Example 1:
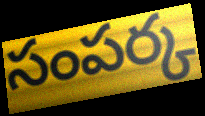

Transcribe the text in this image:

సంపర్క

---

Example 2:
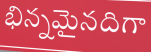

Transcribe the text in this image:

భిన్నమైనదిగా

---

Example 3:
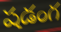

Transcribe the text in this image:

షడంగ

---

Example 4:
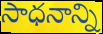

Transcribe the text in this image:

సాధనాన్ని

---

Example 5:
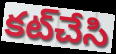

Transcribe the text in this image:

కట్‌చేసి